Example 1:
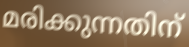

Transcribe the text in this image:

മരിക്കുന്നതിന്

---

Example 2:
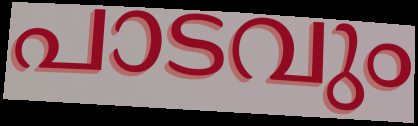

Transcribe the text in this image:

പാടവും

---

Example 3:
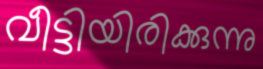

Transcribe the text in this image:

വീട്ടിയിരിക്കുന്നു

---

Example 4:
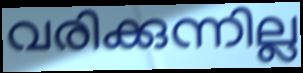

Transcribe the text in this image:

വരിക്കുന്നില്ല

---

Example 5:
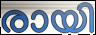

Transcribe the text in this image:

രായി